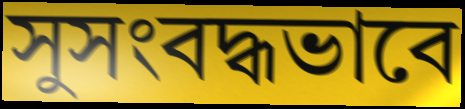
সুসংবদ্ধভাবে